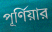
পূর্ণিয়ার